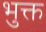
भुक्त